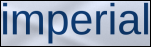
imperial